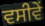
ਵਸੀਵੇਂ